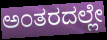
ಅಂತರದಲ್ಲೇ